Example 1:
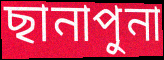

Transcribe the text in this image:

ছানাপুনা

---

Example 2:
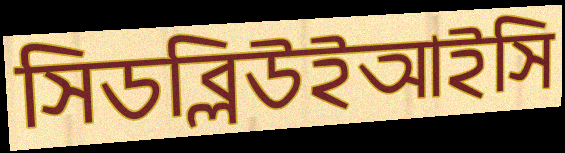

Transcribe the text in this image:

সিডব্লিউইআইসি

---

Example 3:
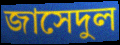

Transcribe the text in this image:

জাসেদুল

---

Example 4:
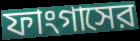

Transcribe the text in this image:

ফাংগাসের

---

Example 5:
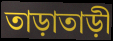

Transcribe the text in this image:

তাড়াতাড়ী